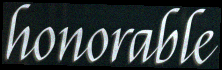
honorable